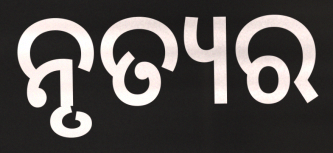
ନୃତ୍ୟର